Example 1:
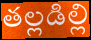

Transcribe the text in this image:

తల్లడిల్లి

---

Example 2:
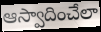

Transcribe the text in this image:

ఆస్వాదించేలా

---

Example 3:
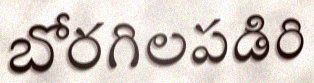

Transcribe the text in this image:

బోరగిలపడిరి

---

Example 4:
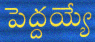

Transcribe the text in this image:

పెద్దయ్యే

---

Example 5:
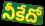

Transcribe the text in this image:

నీకేదో